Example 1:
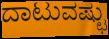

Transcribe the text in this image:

ದಾಟುವಷ್ಟು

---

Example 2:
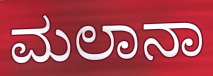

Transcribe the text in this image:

ಮಲಾನಾ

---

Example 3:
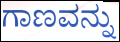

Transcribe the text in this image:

ಗಾಣವನ್ನು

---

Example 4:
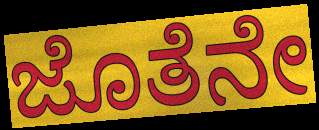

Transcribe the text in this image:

ಜೊತೆನೇ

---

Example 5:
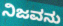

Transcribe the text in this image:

ನಿಜವನು